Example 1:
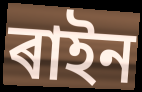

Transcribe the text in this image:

ৰাইন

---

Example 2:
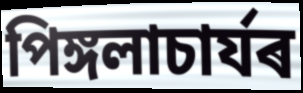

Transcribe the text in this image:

পিঙ্গলাচাৰ্যৰ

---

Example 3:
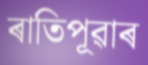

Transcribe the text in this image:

ৰাতিপূৱাৰ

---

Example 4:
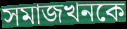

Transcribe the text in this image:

সমাজখনকে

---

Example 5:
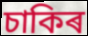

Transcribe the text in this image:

চাকিৰ